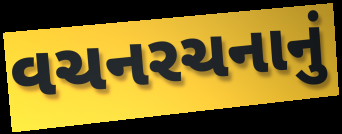
વચનરચનાનું